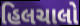
હિલચાલો